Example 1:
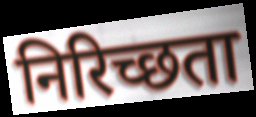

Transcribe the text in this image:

निरिच्छता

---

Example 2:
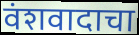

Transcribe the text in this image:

वंशवादाचा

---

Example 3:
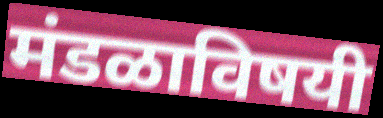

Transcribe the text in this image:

मंडळाविषयी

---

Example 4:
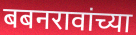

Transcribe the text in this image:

बबनरावांच्या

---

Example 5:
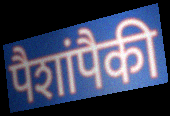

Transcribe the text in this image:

पैशांपैकी